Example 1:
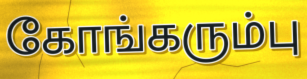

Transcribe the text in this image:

கோங்கரும்பு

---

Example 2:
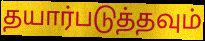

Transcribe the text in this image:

தயார்படுத்தவும்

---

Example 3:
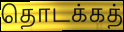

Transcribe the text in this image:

தொடக்கத்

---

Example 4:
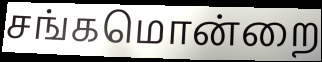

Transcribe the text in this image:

சங்கமொன்றை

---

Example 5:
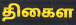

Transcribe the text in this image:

திகைள